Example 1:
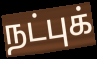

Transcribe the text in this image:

நட்புக்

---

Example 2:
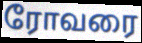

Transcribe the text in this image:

ரோவரை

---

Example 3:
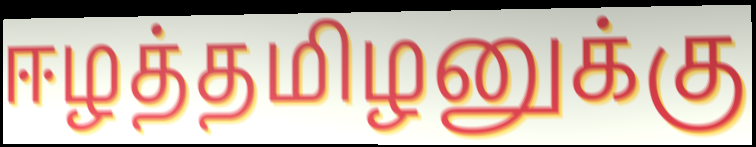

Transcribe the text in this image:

ஈழத்தமிழனுக்கு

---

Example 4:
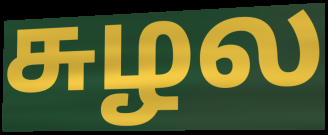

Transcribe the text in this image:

சுழல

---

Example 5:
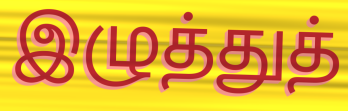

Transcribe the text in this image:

இழுத்துத்